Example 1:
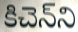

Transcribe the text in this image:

కిచెన్‌ని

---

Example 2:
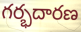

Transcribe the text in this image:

గర్భదారణ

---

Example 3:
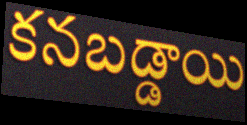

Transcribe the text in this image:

కనబడ్డాయి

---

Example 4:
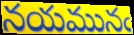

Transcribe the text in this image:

నయమునఁ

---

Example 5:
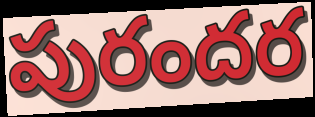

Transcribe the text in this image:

పురందర